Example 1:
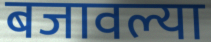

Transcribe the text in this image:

बजावल्या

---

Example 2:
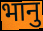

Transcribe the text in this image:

भानु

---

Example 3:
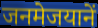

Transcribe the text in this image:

जनमेजयानें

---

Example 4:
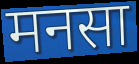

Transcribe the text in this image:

मनसा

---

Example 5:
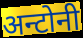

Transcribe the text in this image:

अन्टोनी